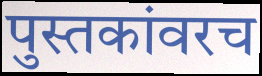
पुस्तकांवरच